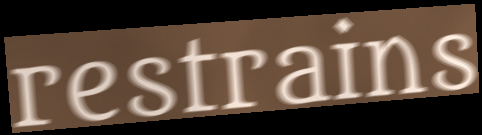
restrains